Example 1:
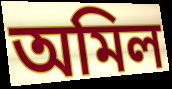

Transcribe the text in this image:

অমিল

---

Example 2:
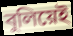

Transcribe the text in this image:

বুলিয়েই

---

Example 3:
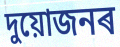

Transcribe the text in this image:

দুয়োজনৰ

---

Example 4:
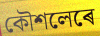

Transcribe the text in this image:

কৌশলেৰে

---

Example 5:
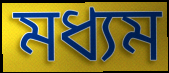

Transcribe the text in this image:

মধ্যম